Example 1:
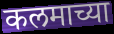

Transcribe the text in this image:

कलमाच्या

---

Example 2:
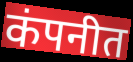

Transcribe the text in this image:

कंपनीत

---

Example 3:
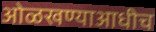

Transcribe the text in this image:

ओळखण्याआधीच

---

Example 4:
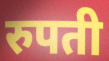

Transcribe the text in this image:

रुपती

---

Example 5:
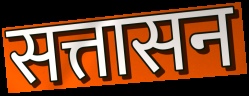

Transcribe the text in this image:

सत्तासन